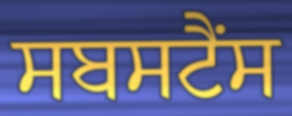
ਸਬਸਟੈਂਸ